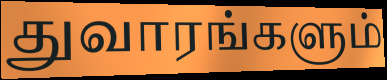
துவாரங்களும்